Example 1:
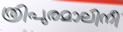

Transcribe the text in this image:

ത്രിപുരമാലിനീ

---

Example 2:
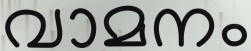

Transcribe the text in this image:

വാമനം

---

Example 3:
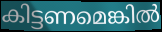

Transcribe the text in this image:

കിട്ടണമെങ്കിൽ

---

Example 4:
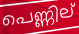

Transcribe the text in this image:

പെണ്ണില്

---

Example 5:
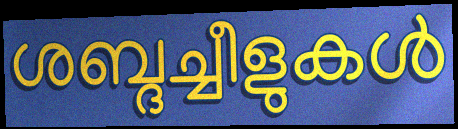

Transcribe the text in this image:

ശബ്ദച്ചീളുകൾ